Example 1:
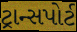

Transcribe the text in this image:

ટ્રાન્સપોર્ટ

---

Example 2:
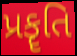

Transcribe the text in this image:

પ્રકૄતિ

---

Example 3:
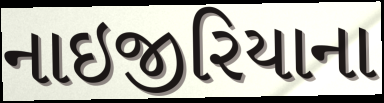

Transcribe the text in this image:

નાઇજીરિયાના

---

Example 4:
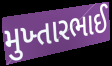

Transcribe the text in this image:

મુખ્તારભાઈ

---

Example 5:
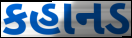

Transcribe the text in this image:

કહાનડ